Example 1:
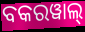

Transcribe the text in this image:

ବକରୱାଲ୍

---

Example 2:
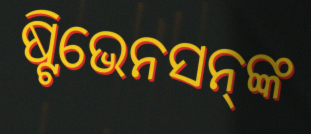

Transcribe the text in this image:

ଷ୍ଟିଭେନସନ୍‍ଙ୍କ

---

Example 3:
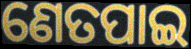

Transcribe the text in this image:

ଣେତପାଇ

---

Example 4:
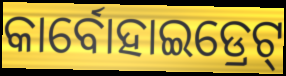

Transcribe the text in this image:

କାର୍ବୋହାଇଡ୍ରେଟ୍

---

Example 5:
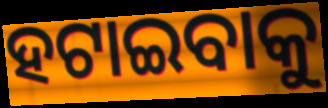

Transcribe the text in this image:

ହଟାଇବାକୁ